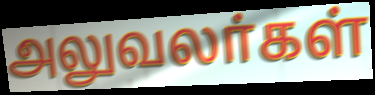
அலுவலர்கள்